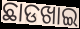
ଛାଡଖାଇ